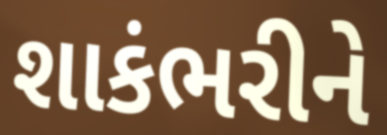
શાકંભરીને